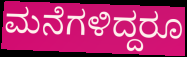
ಮನೆಗಳಿದ್ದರೂ